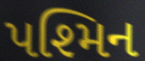
પશ્મિન